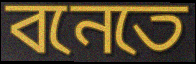
বনেতে